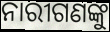
ନାରୀଗଣଙ୍କୁ